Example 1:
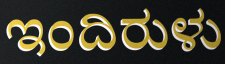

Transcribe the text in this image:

ಇಂದಿರುಳು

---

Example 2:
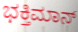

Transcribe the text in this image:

ಭಕ್ತಿಮಾನ್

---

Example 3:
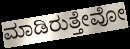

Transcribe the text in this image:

ಮಾಡಿರುತ್ತೇವೋ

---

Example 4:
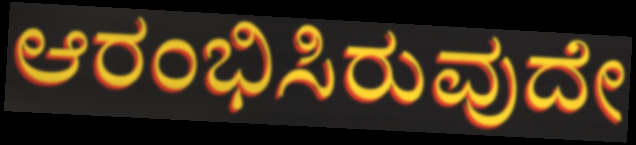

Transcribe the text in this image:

ಆರಂಭಿಸಿರುವುದೇ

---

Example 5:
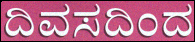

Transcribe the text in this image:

ದಿವಸದಿಂದ